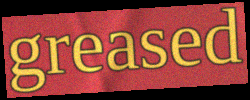
greased